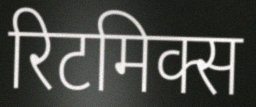
रिटमिक्स